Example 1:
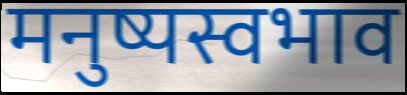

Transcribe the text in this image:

मनुष्यस्वभाव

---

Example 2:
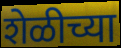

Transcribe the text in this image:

शेळीच्या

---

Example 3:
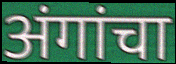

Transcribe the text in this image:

अंगांचा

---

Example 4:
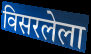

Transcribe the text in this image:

विसरलेला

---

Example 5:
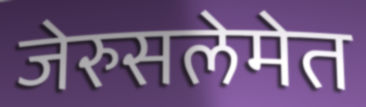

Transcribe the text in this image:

जेरुसलेमेत